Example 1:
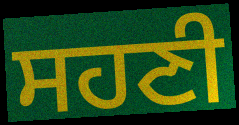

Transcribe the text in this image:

ਸਹਣੀ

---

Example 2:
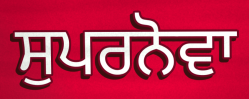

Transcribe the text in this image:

ਸੁਪਰਨੋਵਾ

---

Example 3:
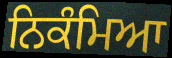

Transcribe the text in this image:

ਨਿਕੰਮਿਆ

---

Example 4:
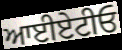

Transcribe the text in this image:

ਆਈਏਟੀਓ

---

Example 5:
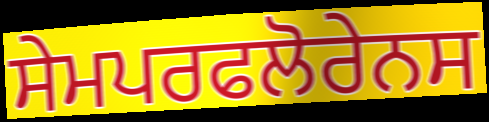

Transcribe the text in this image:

ਸੇਮਪਰਫਲੋਰੇਨਸ